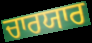
ਚਾਰਯਾਰ